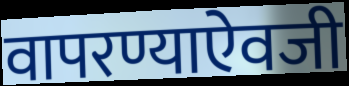
वापरण्याऐवजी